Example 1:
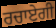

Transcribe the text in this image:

ਰਚਾਏਗੀ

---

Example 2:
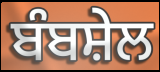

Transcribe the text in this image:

ਬੰਬਸ਼ੇਲ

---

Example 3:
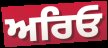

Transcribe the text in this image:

ਅਰਿਓ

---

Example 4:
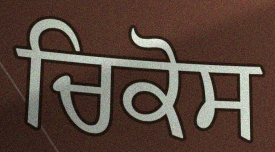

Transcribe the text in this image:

ਚਿਕੋਸ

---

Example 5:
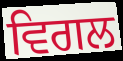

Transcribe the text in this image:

ਵਿਗਲ